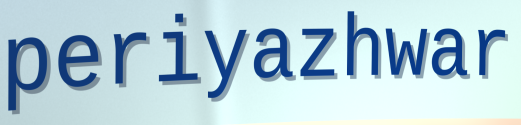
periyazhwar